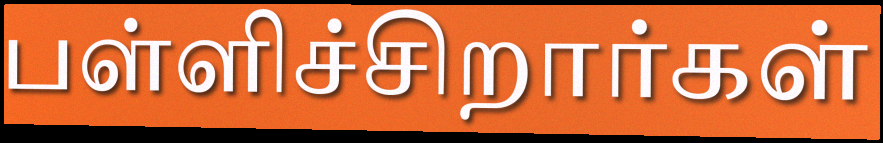
பள்ளிச்சிறார்கள்